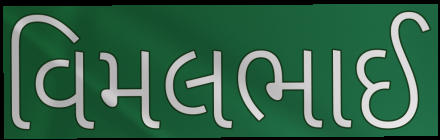
વિમલભાઈ